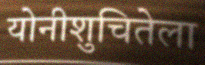
योनीशुचितेला